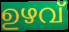
ഉഴവ്